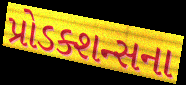
પ્રોડક્શન્સના